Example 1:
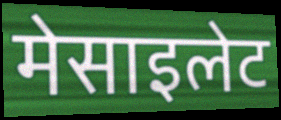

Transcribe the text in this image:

मेसाइलेट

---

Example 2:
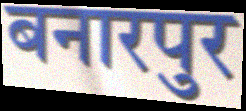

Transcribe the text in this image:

बनारपुर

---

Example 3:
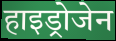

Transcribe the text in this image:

हाइड्रोजेन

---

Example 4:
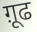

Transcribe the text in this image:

ग़ूढ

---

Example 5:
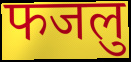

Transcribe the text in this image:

फजलु